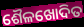
ଶୈଳଖୋଦିତ